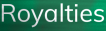
Royalties